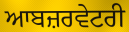
ਆਬਜ਼ਰਵੇਟਰੀ